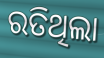
ରତିଥିଲା